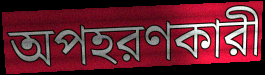
অপহরণকারী